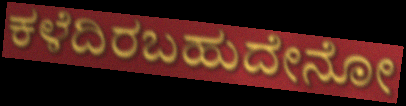
ಕಳೆದಿರಬಹುದೇನೋ